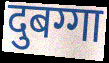
दुबग्गा